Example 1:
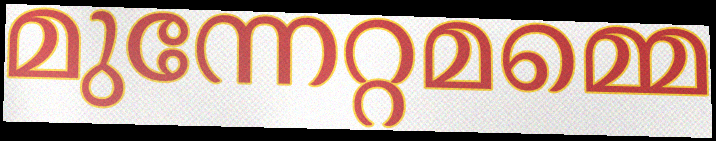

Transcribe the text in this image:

മുന്നേറ്റമമ്മെ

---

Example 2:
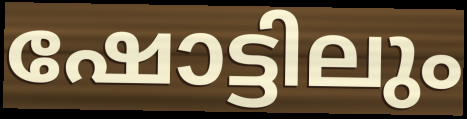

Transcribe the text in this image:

ഷോട്ടിലും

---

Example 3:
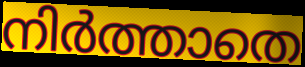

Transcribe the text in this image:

നിർത്താതെ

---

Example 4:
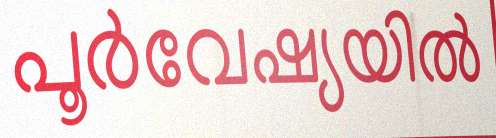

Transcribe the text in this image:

പൂർവേഷ്യയിൽ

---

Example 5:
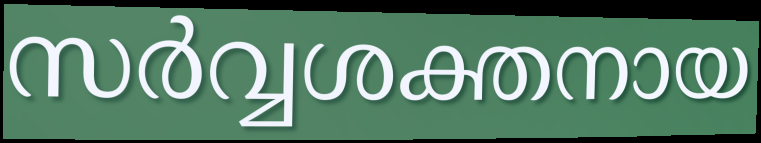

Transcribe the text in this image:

സർവ്വശക്തനായ